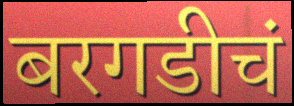
बरगडीचं